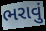
ભરાવું